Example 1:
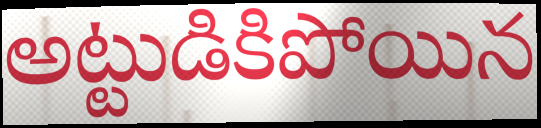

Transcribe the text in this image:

అట్టుడికిపోయిన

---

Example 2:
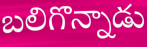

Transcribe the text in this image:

బలిగొన్నాడు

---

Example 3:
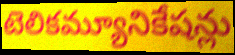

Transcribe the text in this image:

టెలికమ్యూనికేషన్లు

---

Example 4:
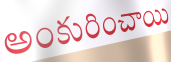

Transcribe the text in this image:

అంకురించాయి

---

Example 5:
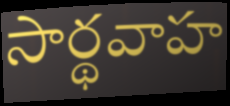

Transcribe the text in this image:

సార్థవాహ